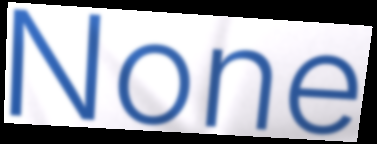
None